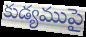
కుడ్యముపై